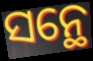
ସନ୍ଥେ